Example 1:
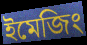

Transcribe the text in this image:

ইমেজিং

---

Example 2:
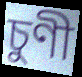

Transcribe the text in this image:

চুণী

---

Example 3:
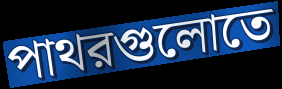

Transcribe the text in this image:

পাথরগুলোতে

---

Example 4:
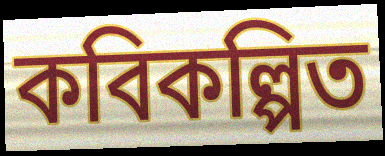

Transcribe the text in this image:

কবিকল্পিত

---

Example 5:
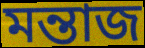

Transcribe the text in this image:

মন্তাজ